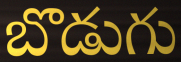
బొడుగు